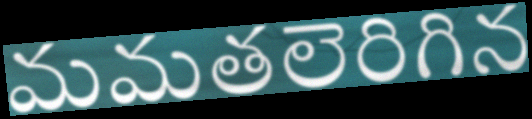
మమతలెరిగిన